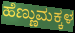
ಹೆಣ್ಣುಮಕ್ಕಳ